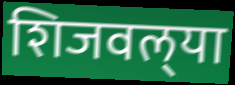
शिजवल्या